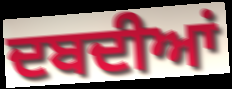
ਦਬਦੀਆਂ